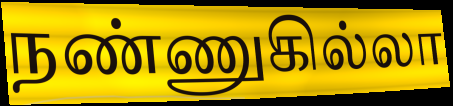
நண்ணுகில்லா